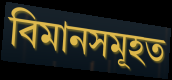
বিমানসমূহত